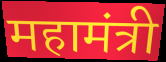
महामंत्री